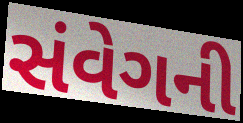
સંવેગની